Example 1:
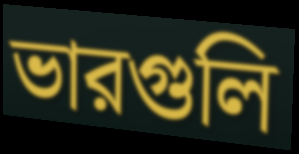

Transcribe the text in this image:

ভারগুলি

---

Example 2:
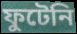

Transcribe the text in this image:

ফুটেনি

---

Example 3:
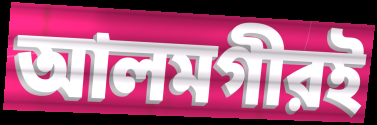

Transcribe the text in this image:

আলমগীরই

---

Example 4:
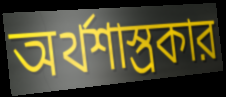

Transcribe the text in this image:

অর্থশাস্ত্রকার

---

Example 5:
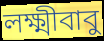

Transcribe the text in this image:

লক্ষ্মীবাবু